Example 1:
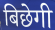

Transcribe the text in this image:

बिछेगी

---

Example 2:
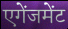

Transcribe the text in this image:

एगेंजमेंट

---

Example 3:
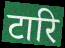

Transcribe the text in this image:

टारि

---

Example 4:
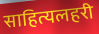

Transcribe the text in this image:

साहित्यलहरी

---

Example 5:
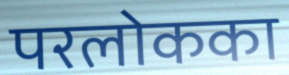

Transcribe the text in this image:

परलोकका